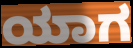
ಯಾಗ